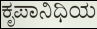
ಕೃಪಾನಿಧಿಯ